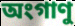
অংগাণু